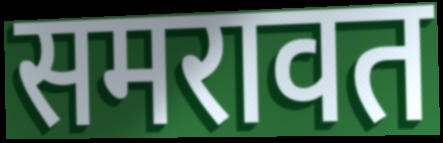
समरावत